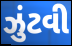
ઝુંટવી